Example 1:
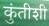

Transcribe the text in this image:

कुंतीशी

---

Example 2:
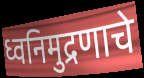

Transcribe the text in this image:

ध्वनिमुद्रणाचे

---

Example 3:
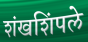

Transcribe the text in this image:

शंखशिंपले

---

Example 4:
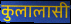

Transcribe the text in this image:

कुलालासी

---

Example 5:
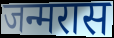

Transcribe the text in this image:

जन्मरास